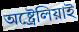
অষ্ট্ৰেলিয়াই